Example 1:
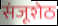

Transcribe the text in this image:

संजूशेठ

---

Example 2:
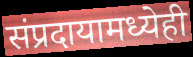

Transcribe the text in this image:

संप्रदायामध्येही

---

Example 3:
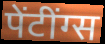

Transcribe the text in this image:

पेंटींग्स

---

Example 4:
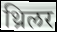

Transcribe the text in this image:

थ्रिलर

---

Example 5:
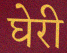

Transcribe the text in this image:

घेरी